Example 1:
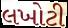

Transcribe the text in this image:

લખોટી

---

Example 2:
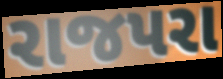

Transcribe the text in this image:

રાજપરા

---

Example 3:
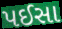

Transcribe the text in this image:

પઈસા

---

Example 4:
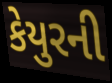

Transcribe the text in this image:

કેયુરની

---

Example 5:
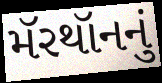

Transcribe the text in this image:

મૅરથૉનનું